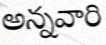
అన్నవారి